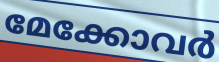
മേക്കോവർ